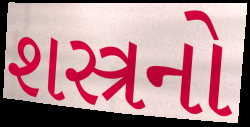
શસ્ત્રનો